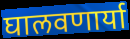
घालवणार्या